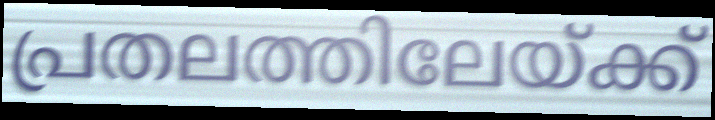
പ്രതലത്തിലേയ്ക്ക്